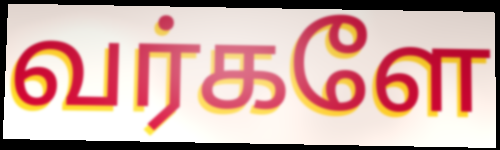
வர்களே